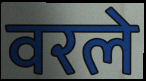
वरले